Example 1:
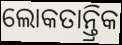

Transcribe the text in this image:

ଲୋକତାନ୍ତ୍ରିକ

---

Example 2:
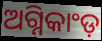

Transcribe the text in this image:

ଅଗ୍ନିକାଂଡ଼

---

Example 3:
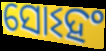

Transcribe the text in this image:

ସୋଽହଂ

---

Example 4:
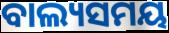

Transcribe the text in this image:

ବାଲ୍ୟସମୟ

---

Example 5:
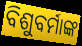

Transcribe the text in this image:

ବିଶୁବର୍ମାଙ୍କ